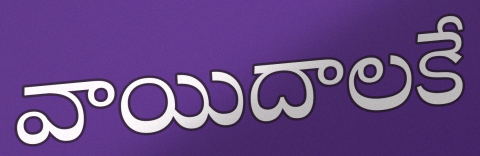
వాయిదాలకే